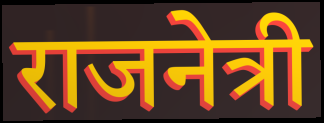
राजनेत्री